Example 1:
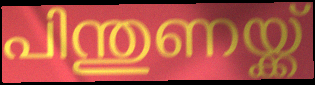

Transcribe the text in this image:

പിന്തുണയ്ക്ക്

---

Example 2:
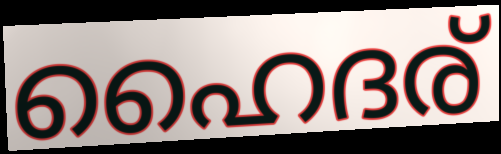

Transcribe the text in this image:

ഹൈദര്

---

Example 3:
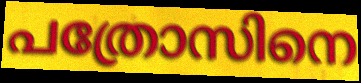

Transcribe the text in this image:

പത്രോസിനെ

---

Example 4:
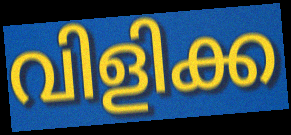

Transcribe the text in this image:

വിളിക്ക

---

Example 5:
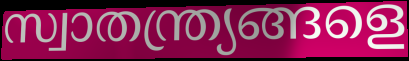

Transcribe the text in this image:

സ്വാതന്ത്ര്യങ്ങളെ